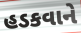
હડકવાને